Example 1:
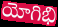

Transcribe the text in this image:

యోగిభి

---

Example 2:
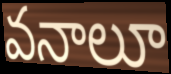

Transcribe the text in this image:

వనాలూ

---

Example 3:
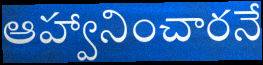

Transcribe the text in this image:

ఆహ్వానించారనే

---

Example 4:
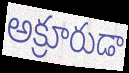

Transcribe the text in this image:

అక్రూరుడా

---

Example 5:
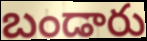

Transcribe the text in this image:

బండారు